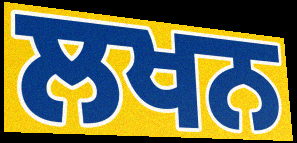
ਲਖਨ